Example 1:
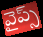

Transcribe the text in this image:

వైప్స్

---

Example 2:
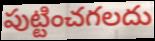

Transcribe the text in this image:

పుట్టించగలదు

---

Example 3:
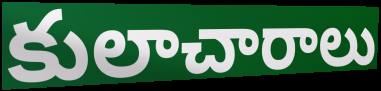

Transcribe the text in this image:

కులాచారాలు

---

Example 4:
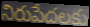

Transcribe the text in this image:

నిరుపేదలకు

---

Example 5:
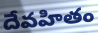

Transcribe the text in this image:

దేవహితం